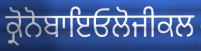
ਕ੍ਰੋਨੋਬਾਇਓਲੋਜੀਕਲ